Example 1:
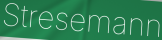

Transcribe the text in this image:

Stresemann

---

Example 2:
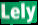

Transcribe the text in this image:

Lely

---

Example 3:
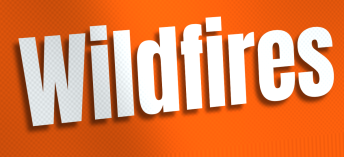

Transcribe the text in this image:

Wildfires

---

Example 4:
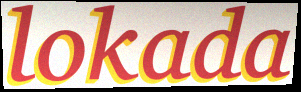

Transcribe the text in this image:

lokada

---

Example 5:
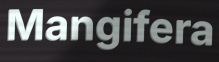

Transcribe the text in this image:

Mangifera